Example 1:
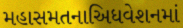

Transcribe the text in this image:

મહાસમતનાઅિધવેશનમાં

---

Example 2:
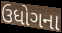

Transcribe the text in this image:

ઉધોગના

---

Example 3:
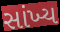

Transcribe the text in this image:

સાંખ્ય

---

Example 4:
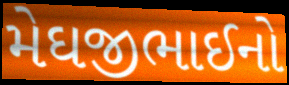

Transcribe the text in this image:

મેઘજીભાઈનો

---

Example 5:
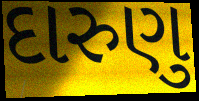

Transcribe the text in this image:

દારુણુ